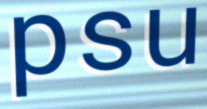
psu